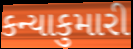
કન્યાકુમારી